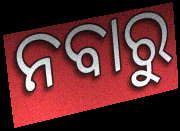
ନବାରୁ